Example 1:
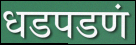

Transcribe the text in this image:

धडपडणं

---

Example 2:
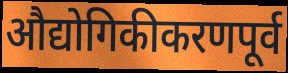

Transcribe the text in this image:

औद्योगिकीकरणपूर्व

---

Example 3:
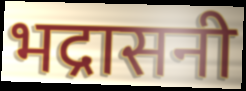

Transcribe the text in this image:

भद्रासनी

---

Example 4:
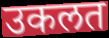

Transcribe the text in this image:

उकलत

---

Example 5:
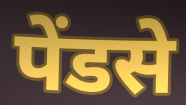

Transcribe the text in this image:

पेंडसे